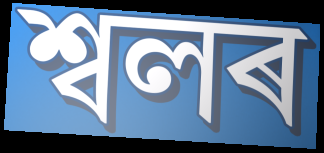
শ্বলৰ